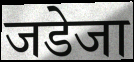
जडेजा